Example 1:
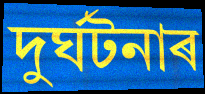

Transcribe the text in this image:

দুৰ্ঘটনাৰ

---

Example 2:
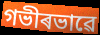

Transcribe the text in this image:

গভীৰভাৱে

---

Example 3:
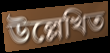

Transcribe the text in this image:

উল্লেখিত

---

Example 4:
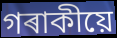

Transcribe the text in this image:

গৰাকীয়ে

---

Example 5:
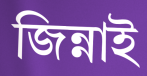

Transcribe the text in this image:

জিন্নাই